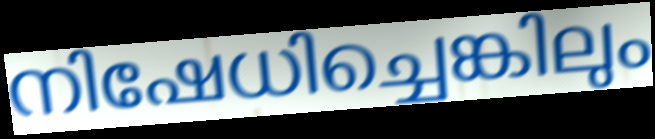
നിഷേധിച്ചെങ്കിലും